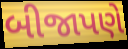
બીજાપણે